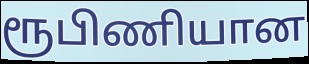
ரூபிணியான